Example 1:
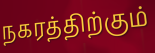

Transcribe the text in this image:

நகரத்திற்கும்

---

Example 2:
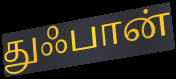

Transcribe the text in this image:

துஃபான்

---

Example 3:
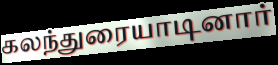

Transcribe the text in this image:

கலந்துரையாடினார்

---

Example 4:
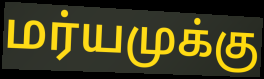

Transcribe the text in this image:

மர்யமுக்கு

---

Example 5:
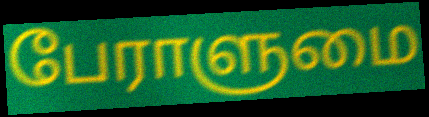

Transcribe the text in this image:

பேராளுமை